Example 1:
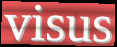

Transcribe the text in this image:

visus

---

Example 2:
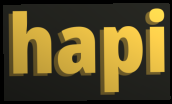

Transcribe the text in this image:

hapi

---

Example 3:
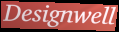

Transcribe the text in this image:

Designwell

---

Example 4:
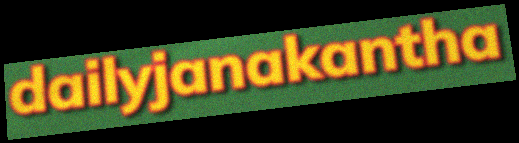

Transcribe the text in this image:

dailyjanakantha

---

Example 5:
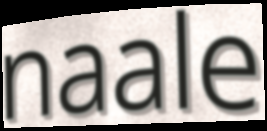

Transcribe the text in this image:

naale